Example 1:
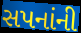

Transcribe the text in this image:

સપનાંની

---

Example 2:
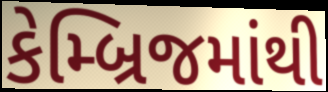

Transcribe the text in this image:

કેમ્બ્રિજમાંથી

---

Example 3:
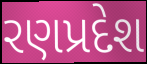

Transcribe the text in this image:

રણપ્રદેશ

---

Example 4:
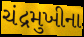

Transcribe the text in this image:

ચંદ્રમુખીના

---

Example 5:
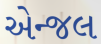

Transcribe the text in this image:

એન્જલ